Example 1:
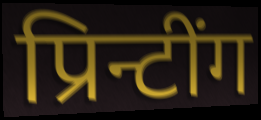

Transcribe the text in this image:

प्रिन्टींग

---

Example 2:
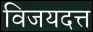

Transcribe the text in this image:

विजयदत्त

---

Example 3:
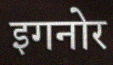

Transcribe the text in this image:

इगनोर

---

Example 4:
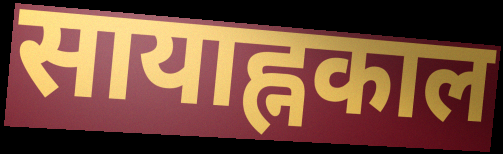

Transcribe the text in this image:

सायाह्नकाल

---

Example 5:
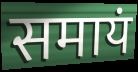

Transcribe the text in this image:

समायं